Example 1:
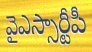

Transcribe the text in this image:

వైఎస్సార్టీపీ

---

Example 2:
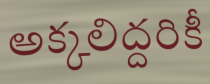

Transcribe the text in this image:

అక్కలిద్దరికీ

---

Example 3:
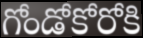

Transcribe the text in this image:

గోండోకోరోకి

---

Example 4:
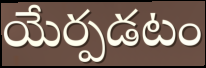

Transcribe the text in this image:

యేర్పడటం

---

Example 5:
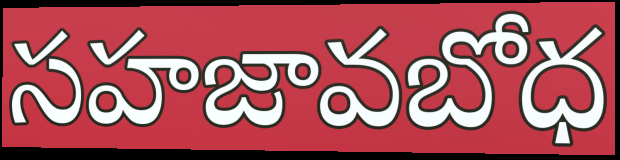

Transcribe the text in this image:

సహజావబోధ